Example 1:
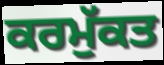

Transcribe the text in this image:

ਕਰਮੁੱਕਤ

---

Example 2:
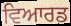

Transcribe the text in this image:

ਵਿਆਰਡ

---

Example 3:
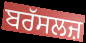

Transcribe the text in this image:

ਬਰੱਸਲਜ਼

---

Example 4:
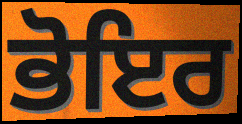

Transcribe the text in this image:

ਭੋਇਰ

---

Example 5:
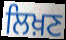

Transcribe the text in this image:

ਲਿਖ਼ਣ